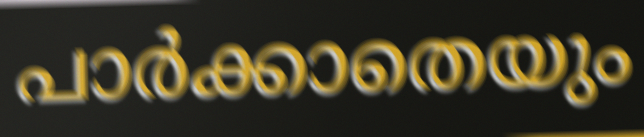
പാർക്കാതെയും